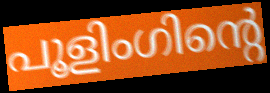
പൂളിംഗിന്റെ